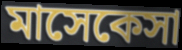
মাসেকেসা